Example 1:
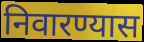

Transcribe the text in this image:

निवारण्यास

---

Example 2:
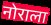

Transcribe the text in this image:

नोराला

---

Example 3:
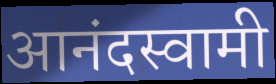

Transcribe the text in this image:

आनंदस्वामी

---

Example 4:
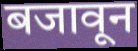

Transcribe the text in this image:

बजावून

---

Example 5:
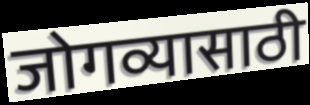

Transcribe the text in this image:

जोगव्यासाठी